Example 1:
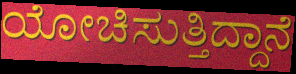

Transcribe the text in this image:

ಯೋಚಿಸುತ್ತಿದ್ದಾನೆ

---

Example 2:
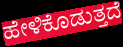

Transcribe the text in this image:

ಹೇಳಿಕೊಡುತ್ತದೆ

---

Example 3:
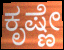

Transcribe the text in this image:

ಕೃಷ್ಣೇ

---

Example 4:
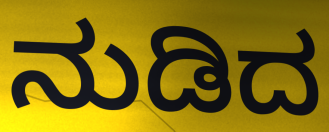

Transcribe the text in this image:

ನುಡಿದ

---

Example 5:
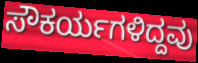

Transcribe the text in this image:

ಸೌಕರ್ಯಗಳಿದ್ದವು